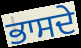
ਭਾਸਦੇ